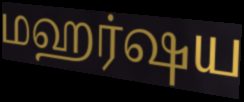
மஹர்ஷய